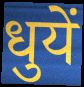
धुयें